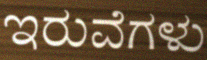
ಇರುವೆಗಳು